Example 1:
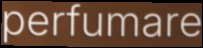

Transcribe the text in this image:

perfumare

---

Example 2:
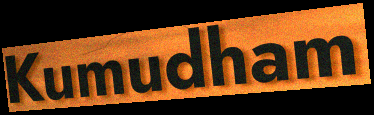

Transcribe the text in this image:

Kumudham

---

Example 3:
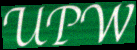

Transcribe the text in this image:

UPW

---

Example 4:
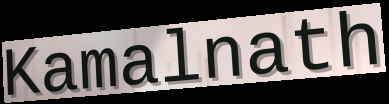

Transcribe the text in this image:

Kamalnath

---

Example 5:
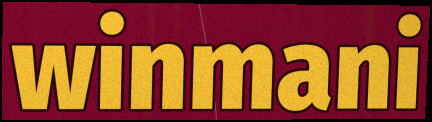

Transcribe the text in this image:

winmani